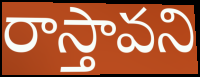
రాస్తావని